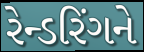
રેન્ડરિંગને